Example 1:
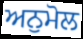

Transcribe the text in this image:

ਅਨੁਮੋਲ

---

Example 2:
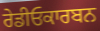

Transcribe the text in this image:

ਰੇਡੀਓਕਾਰਬਨ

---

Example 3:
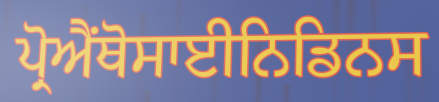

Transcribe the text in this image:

ਪ੍ਰੋਐਂਥੋਸਾਈਨਿਡਿਨਸ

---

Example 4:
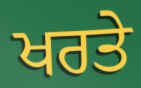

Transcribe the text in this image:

ਖਰਤੇ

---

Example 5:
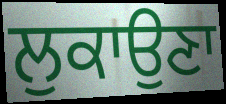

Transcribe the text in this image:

ਲੁਕਾਉਣਾ